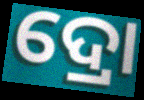
ଦ୍ରୋ